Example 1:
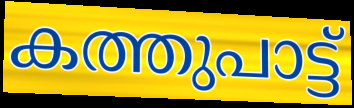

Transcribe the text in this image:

കത്തുപാട്ട്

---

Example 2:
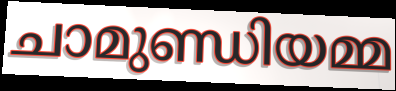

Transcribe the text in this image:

ചാമുണ്ഡിയമ്മ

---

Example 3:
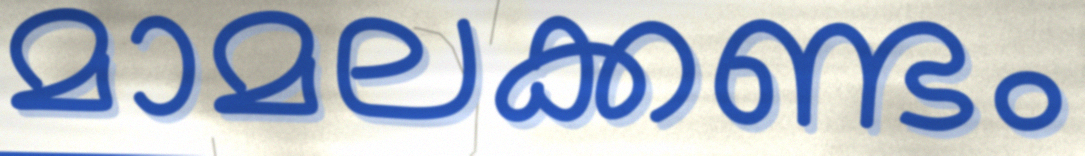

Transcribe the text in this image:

മാമലക്കണ്ടം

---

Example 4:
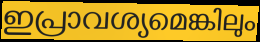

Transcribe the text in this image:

ഇപ്രാവശ്യമെങ്കിലും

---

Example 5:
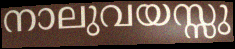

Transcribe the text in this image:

നാലുവയസ്സു